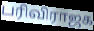
பரிவிராஜக